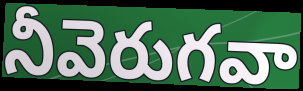
నీవెరుగవా